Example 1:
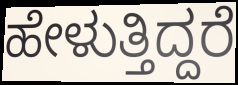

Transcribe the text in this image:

ಹೇಳುತ್ತಿದ್ದರೆ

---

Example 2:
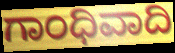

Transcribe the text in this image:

ಗಾಂಧಿವಾದಿ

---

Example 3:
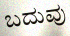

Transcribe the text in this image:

ಬದುವು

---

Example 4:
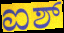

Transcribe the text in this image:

ಐಶ್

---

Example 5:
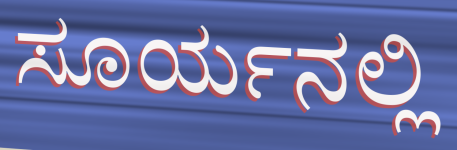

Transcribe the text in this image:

ಸೂರ್ಯನಲ್ಲಿ